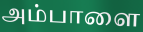
அம்பாளை